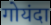
गोयंदा